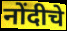
नोंदीचे